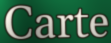
Carte